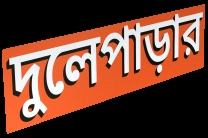
দুলেপাড়ার